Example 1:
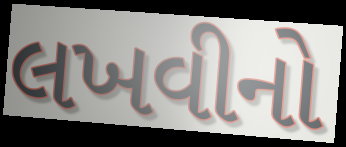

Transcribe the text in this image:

લખવીનો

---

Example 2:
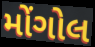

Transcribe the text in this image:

મોંગોલ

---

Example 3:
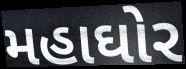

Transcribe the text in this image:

મહાઘોર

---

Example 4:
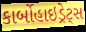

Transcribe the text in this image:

કાર્બોહાઇડ્રેટ્સ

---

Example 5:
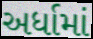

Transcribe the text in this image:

અર્ધામાં